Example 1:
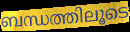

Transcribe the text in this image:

ബന്ധത്തിലൂടെ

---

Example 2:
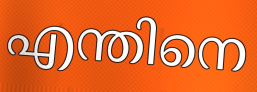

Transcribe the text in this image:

എന്തിനെ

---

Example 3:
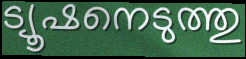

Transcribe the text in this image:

ട്യൂഷനെടുത്തു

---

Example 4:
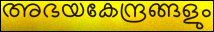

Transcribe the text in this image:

അഭയകേന്ദ്രങ്ങളും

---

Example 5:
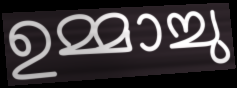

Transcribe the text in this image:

ഉമ്മാച്ചു